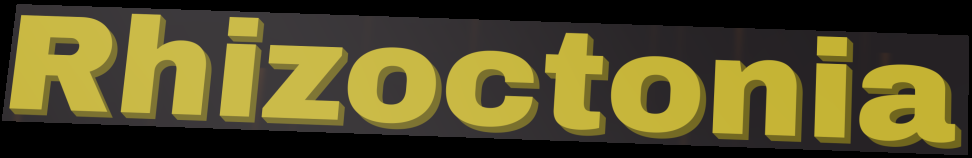
Rhizoctonia